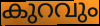
കുറവും